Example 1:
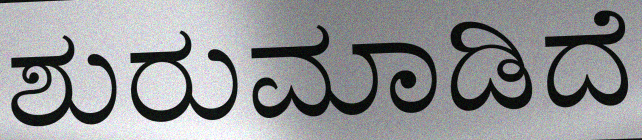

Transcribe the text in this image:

ಶುರುಮಾಡಿದೆ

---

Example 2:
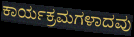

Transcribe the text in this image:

ಕಾರ್ಯಕ್ರಮಗಳಾದವು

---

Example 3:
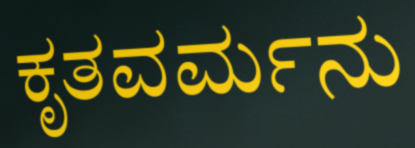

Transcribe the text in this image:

ಕೃತವರ್ಮನು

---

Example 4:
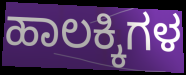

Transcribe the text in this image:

ಹಾಲಕ್ಕಿಗಳ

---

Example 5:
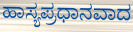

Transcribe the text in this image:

ಹಾಸ್ಯಪ್ರಧಾನವಾದ